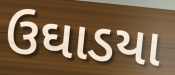
ઉઘાડયા